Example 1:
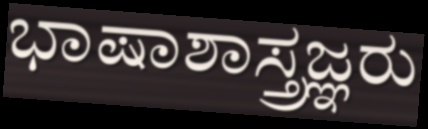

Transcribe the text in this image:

ಭಾಷಾಶಾಸ್ತ್ರಜ್ಞರು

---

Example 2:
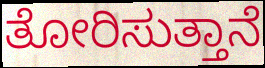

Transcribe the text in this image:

ತೋರಿಸುತ್ತಾನೆ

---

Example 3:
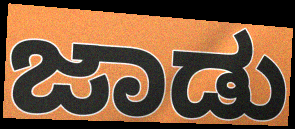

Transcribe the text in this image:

ಜಾಡು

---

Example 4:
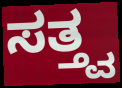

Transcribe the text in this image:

ಸತ್ತ್ವ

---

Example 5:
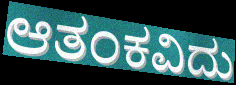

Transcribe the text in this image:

ಆತಂಕವಿದು